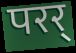
परर्